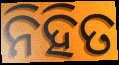
ନିହିତ